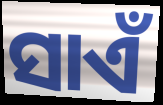
ସାଏଁ